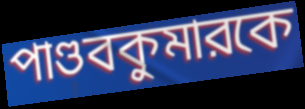
পাণ্ডবকুমারকে